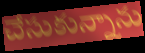
చేసుకున్నాను